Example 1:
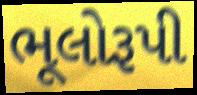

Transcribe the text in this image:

ભૂલોરૂપી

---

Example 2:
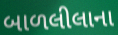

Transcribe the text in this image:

બાળલીલાના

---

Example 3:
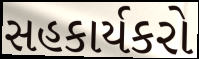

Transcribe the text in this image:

સહકાર્યકરો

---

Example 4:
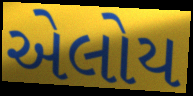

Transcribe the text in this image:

એલોય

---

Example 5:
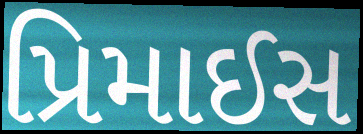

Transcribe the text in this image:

પ્રિમાઈસ